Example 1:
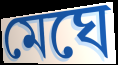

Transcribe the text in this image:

মেঘে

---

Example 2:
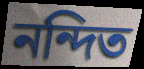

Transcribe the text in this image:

নন্দিত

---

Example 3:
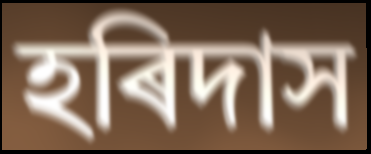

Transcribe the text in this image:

হৰিদাস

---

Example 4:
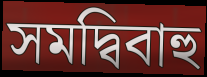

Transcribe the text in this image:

সমদ্বিবাহু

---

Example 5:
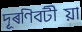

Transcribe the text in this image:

দূৰণিবটীয়া